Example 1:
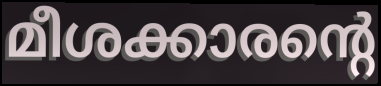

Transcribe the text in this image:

മീശക്കാരന്റെ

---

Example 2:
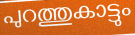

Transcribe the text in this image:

പുറത്തുകാട്ടും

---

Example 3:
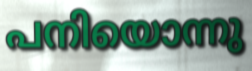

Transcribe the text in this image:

പനിയൊന്നു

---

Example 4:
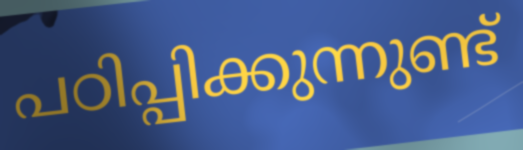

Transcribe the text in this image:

പഠിപ്പിക്കുന്നുണ്ട്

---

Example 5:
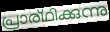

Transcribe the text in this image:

പ്രാര്ഥിക്കുന്നു